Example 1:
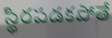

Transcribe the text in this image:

స్థిరపడకపోతే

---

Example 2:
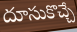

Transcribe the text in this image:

దూసుకొచ్చే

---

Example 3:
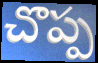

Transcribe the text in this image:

చొప్ప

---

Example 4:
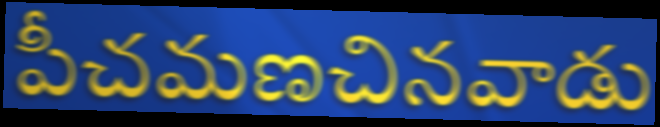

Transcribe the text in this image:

పీచమణచినవాడు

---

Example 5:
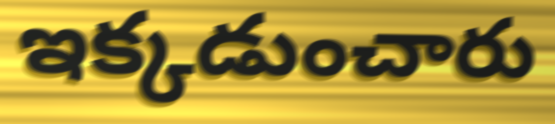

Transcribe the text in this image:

ఇక్కడుంచారు